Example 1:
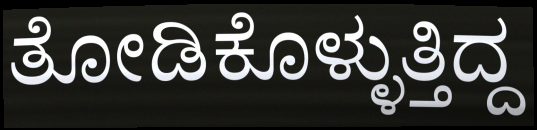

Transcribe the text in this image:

ತೋಡಿಕೊಳ್ಳುತ್ತಿದ್ದ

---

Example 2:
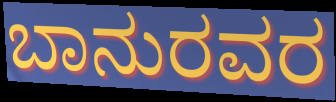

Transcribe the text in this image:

ಬಾನುರವರ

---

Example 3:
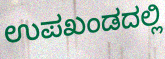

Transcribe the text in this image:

ಉಪಖಂಡದಲ್ಲಿ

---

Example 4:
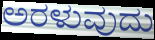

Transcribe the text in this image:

ಅರಳುವುದು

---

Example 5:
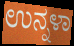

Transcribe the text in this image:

ಉನ್ನಳಾ